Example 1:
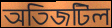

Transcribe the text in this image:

অতিজটিল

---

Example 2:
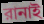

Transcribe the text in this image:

রানাই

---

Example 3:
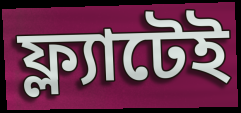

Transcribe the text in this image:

ফ্ল্যাটেই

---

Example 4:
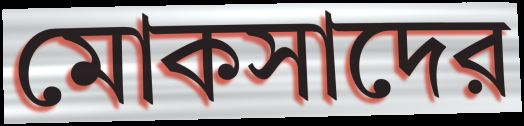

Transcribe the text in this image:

মোকসাদের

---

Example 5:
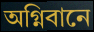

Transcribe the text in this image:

অগ্নিবানে